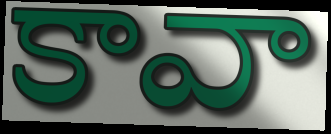
కావా